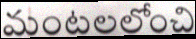
మంటలలోంచి